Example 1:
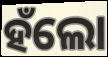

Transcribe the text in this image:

ହଁଲୋ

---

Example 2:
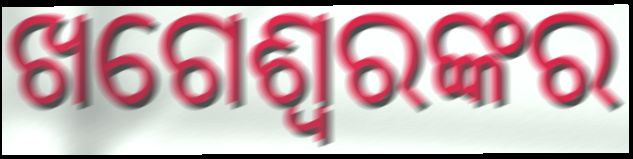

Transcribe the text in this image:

ଖଗେଶ୍ୱରଙ୍କର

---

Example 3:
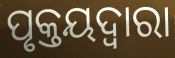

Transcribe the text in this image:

ପୃକ୍ତୟଦ୍ଵାରା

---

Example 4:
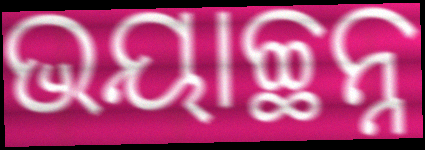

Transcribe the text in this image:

ଭୟାଚ୍ଛନ୍ନ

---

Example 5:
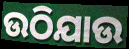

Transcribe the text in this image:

ଉଠିଯାଉ